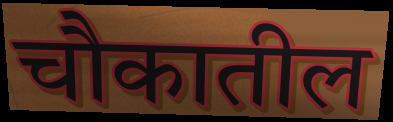
चौकातील